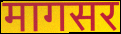
मागसर